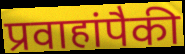
प्रवाहांपैकी